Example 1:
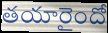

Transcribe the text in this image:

తయారైందో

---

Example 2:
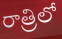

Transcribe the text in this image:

రాత్రిలో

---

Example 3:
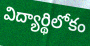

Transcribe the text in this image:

విద్యార్థిలోకం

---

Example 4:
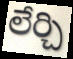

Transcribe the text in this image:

లేర్చి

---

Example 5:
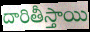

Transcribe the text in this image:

దారితీస్తాయి